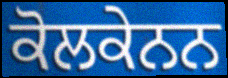
ਕੋਲਕੇਨਨ